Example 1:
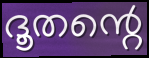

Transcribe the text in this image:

ദൂതന്റെ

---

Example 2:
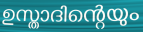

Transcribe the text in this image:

ഉസ്താദിന്റെയും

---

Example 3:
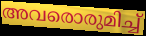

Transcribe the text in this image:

അവരൊരുമിച്ച്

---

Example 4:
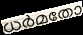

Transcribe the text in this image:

ധർമതോ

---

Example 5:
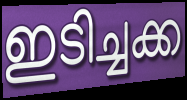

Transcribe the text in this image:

ഇടിച്ചക്ക